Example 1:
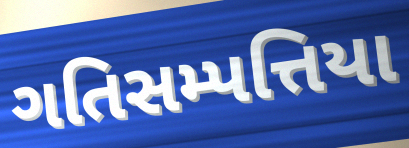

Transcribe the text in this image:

ગતિસમ્પત્તિયા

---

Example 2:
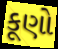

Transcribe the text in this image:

કૂણો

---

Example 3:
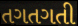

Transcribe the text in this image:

તગતગતી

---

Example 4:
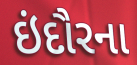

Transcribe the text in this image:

ઇંદૌરના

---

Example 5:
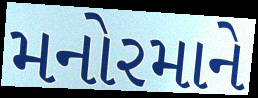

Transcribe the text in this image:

મનોરમાને